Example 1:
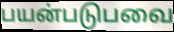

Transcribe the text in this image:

பயன்படுபவை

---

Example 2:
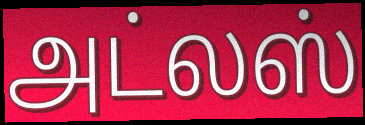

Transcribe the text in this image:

அட்லஸ்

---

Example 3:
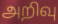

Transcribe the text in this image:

அறிவு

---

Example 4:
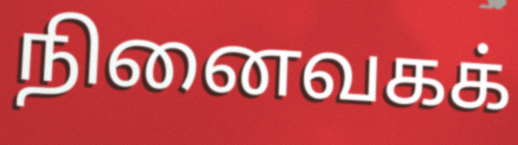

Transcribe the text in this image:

நினைவகக்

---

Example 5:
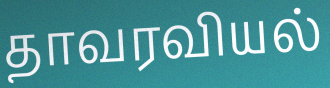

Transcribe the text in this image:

தாவரவியல்